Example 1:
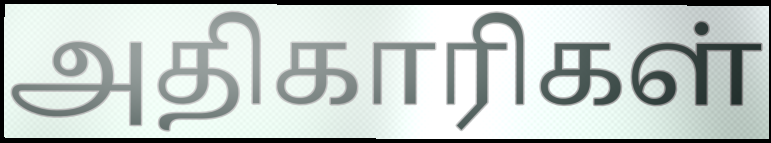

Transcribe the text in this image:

அதிகாரிகள்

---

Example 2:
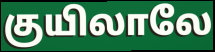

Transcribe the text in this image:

குயிலாலே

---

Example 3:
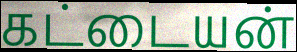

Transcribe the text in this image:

கட்டையன்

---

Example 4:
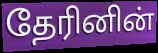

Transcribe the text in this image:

தேரினின்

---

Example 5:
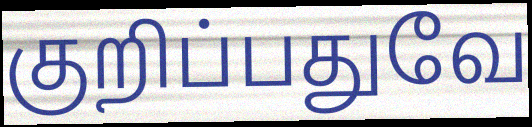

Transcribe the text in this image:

குறிப்பதுவே